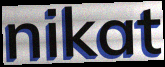
nikat